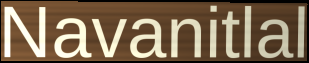
Navanitlal